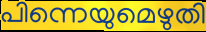
പിന്നെയുമെഴുതി